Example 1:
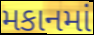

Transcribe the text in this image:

મકાનમાં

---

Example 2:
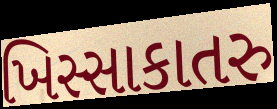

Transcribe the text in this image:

ખિસ્સાકાતરુ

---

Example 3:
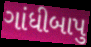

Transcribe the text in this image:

ગાંધીબાપુ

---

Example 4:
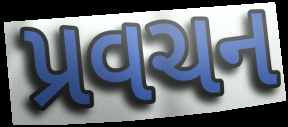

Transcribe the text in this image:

પ્રવચન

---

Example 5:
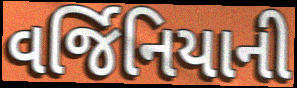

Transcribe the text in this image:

વર્જિનિયાની